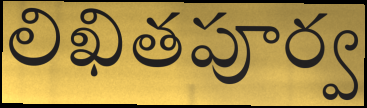
లిఖితపూర్వ